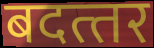
बदत्‍तर